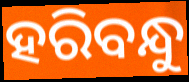
ହରିବନ୍ଧୁ